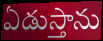
ఏడుస్తాను